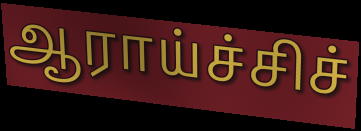
ஆராய்ச்சிச்